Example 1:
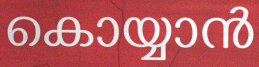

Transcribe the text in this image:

കൊയ്യാൻ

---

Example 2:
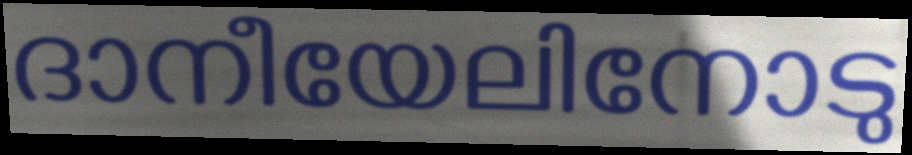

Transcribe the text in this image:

ദാനീയേലിനോടു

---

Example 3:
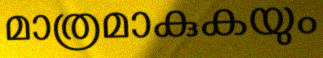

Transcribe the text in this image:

മാത്രമാകുകയും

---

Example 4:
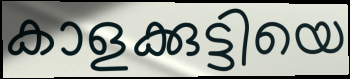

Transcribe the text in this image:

കാളക്കുട്ടിയെ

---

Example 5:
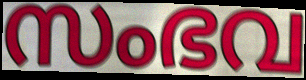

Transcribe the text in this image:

സംഭവ